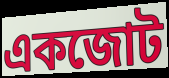
একজোট